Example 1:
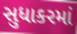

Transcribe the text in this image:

સુધાકરમાં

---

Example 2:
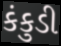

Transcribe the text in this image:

કંકુડી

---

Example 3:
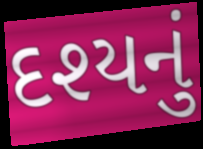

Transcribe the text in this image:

દશ્યનું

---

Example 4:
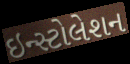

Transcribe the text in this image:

ઇન્સ્ટોલેશન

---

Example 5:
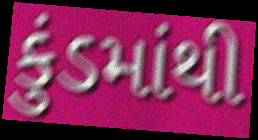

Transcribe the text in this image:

કુંડમાંથી